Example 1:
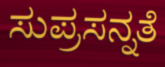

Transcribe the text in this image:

ಸುಪ್ರಸನ್ನತೆ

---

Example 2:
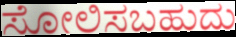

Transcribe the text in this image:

ಸೋಲಿಸಬಹುದು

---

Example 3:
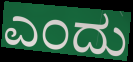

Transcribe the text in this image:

ಎಂದು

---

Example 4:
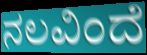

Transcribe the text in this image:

ನಲವಿಂದೆ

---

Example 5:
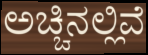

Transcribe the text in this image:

ಅಚ್ಚಿನಲ್ಲಿವೆ